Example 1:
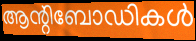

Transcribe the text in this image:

ആന്റിബോഡികൾ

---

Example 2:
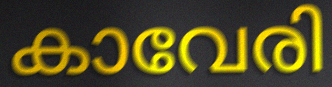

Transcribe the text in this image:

കാവേരി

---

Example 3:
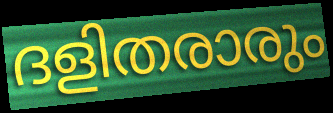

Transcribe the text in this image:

ദളിതരാരും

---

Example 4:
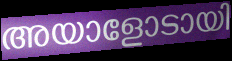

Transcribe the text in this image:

അയാളോടായി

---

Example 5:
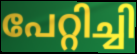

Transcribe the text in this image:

പേറ്റിച്ചി